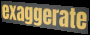
exaggerate